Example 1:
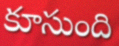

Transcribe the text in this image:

కూసుంది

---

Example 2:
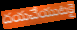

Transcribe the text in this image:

దయచేయుటకై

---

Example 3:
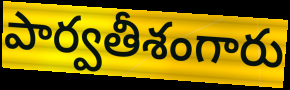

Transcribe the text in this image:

పార్వతీశంగారు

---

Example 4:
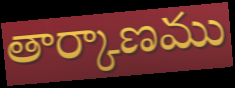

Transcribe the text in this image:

తార్కాణము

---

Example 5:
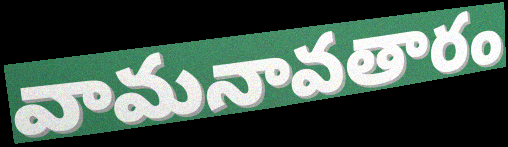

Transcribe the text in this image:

వామనావతారం